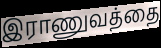
இராணுவத்தை